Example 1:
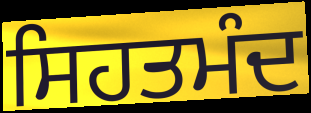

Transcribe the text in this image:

ਸਿਹਤਮੰਦ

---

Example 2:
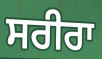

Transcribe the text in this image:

ਸਰੀਰਾ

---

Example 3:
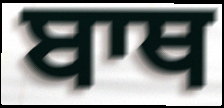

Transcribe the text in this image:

ਬਾਥ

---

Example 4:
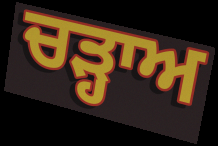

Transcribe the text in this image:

ਚੜ੍ਹਾਅ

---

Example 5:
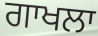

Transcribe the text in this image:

ਗਾਖਲਾ